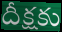
దీక్షకు